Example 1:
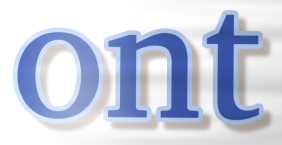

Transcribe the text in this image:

ont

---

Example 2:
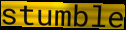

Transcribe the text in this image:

stumble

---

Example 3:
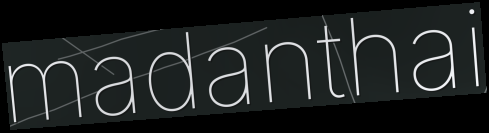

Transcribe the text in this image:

madanthai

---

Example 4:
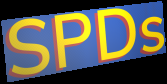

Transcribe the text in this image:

SPDs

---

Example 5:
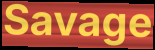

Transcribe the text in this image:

Savage